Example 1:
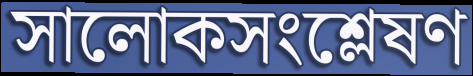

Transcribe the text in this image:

সালোকসংশ্লেষণ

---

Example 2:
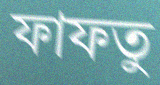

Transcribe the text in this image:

ফাফতু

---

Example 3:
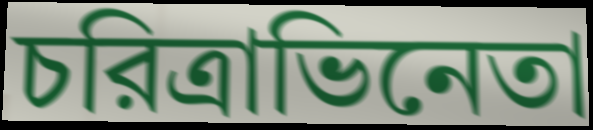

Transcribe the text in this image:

চরিত্রাভিনেতা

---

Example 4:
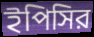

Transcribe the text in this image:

ইপিসির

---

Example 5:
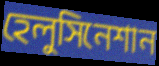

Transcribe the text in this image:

হেলুসিনেশান